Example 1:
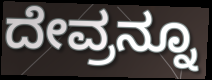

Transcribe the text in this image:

ದೇವ್ರನ್ನೂ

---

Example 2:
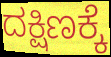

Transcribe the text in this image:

ದಕ್ಷಿಣಕ್ಕೆ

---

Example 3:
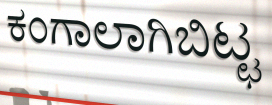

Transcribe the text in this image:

ಕಂಗಾಲಾಗಿಬಿಟ್ಟ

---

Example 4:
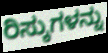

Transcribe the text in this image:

ರಿಸ್ಕುಗಳನ್ನು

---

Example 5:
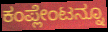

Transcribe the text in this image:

ಕಂಪ್ಲೇಂಟನ್ನೂ